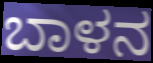
ಬಾಳನ